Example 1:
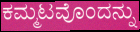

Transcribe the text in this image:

ಕಮ್ಮಟವೊಂದನ್ನು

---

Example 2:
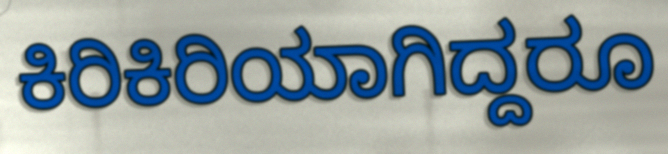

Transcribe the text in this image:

ಕಿರಿಕಿರಿಯಾಗಿದ್ದರೂ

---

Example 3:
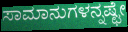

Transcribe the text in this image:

ಸಾಮಾನುಗಳನ್ನಷ್ಟೇ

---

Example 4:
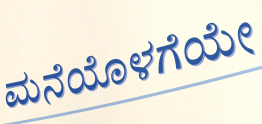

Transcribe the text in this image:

ಮನೆಯೊಳಗೆಯೇ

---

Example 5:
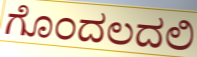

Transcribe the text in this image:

ಗೊಂದಲದಲಿ